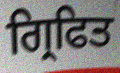
ਗ੍ਰਿਫਿਤ